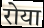
रोया